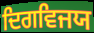
ਦਿਗਵਿਜਯ